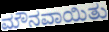
ಮೌನವಾಯಿತು